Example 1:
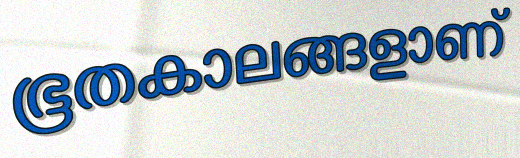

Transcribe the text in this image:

ഭൂതകാലങ്ങളാണ്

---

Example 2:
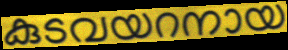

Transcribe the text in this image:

കുടവയറനായ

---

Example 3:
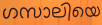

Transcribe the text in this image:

ഗസാലിയെ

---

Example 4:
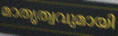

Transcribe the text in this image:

മാതൃത്വവുമായി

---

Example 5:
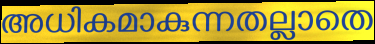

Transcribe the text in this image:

അധികമാകുന്നതല്ലാതെ